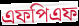
এফপিএফ